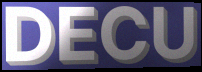
DECU